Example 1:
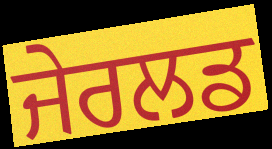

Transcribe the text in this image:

ਜੇਰਲਡ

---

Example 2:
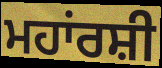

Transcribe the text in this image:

ਮਹਾਂਰਸ਼ੀ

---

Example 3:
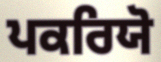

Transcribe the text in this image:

ਪਕਰਿਯੋ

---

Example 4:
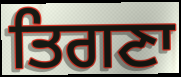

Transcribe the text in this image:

ਤਿਗਣਾ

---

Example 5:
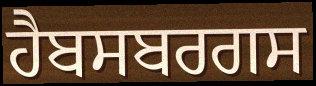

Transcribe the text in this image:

ਹੈਬਸਬਰਗਸ